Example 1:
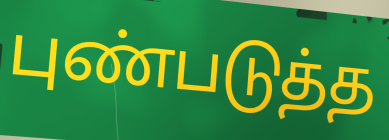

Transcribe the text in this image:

புண்படுத்த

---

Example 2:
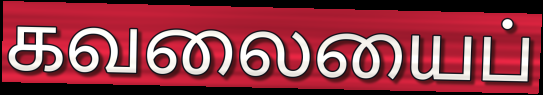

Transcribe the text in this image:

கவலையைப்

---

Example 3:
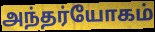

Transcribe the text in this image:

அந்தர்யோகம்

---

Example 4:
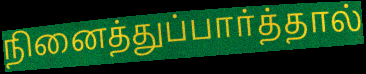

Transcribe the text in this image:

நினைத்துப்பார்த்தால்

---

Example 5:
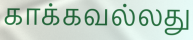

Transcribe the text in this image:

காக்கவல்லது